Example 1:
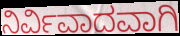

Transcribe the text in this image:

ನಿರ್ವಿವಾದವಾಗಿ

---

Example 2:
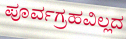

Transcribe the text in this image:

ಪೂರ್ವಗ್ರಹವಿಲ್ಲದ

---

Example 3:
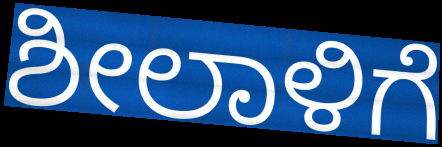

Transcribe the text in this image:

ಶೀಲಾಳಿಗೆ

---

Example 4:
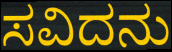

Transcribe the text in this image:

ಸವಿದನು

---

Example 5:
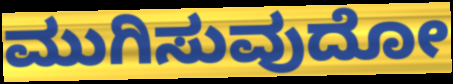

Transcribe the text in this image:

ಮುಗಿಸುವುದೋ